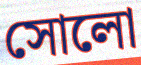
সোলো